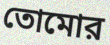
তোমোর